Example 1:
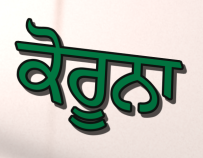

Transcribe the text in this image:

ਕੋਰੂਨਾ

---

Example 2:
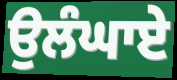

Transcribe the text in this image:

ਉਲੰਘਾਏ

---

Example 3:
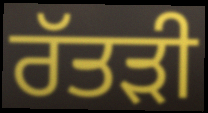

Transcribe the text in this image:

ਰੱਤੜੀ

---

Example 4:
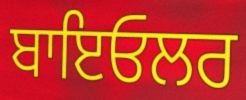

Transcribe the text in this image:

ਬਾਇਓਲਰ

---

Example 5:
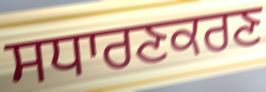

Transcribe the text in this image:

ਸਧਾਰਣਕਰਣ